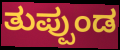
ತುಪ್ಪುಂಡ